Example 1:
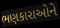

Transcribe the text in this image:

ભણકારાઓને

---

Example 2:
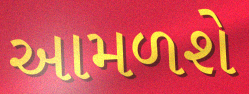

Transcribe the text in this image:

આમળશે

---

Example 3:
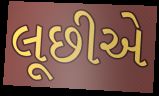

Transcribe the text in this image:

લૂછીએ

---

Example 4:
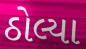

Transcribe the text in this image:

ઠોલ્યા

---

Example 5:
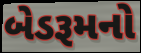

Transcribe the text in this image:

બેડરૂમનો